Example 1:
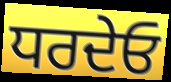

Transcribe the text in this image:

ਧਰਦੇਓ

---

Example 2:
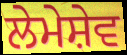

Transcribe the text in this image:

ਲੇਮੇਸ਼ੇਵ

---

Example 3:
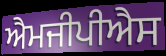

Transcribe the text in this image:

ਐਮਜੀਪੀਐਸ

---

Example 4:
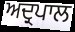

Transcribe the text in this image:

ਅਦ੍ਰਪਾਲ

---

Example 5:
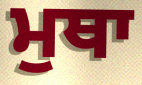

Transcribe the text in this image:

ਮੁਥਾ